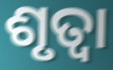
ଶୃତ୍ୱା